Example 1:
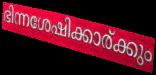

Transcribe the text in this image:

ഭിന്നശേഷിക്കാര്ക്കും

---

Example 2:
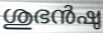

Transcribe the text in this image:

ശുഭൻഷു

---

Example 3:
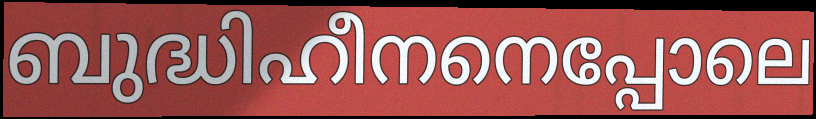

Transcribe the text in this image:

ബുദ്ധിഹീനനെപ്പോലെ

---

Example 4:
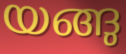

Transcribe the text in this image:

യങ്ങു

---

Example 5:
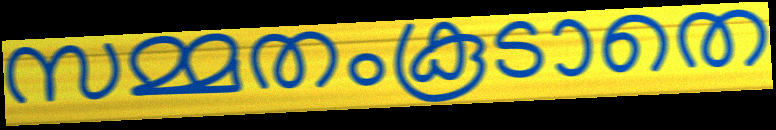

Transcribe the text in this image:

സമ്മതംകൂടാതെ